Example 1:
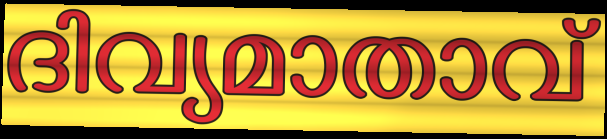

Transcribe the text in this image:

ദിവ്യമാതാവ്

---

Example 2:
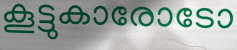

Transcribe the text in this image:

കൂട്ടുകാരോടോ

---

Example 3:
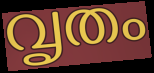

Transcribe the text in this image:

വൃതം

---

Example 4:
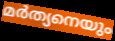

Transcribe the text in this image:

മർത്യനെയും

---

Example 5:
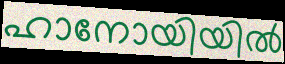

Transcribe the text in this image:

ഹാനോയിയിൽ